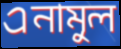
এনামুল